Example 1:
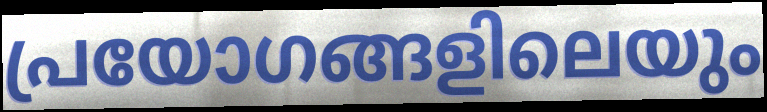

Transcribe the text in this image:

പ്രയോഗങ്ങളിലെയും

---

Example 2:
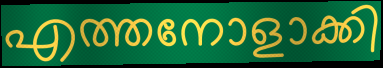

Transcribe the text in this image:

എത്തനോളാക്കി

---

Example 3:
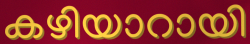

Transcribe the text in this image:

കഴിയാറായി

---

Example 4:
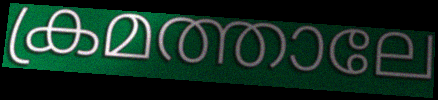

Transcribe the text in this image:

ക്രമത്താലേ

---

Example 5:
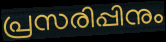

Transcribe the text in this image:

പ്രസരിപ്പിനും